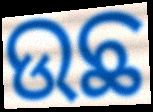
ଉଛ